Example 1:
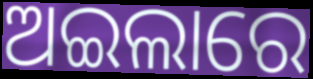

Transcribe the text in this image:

ଅଇଲାରେ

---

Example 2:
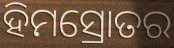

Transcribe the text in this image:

ହିମସ୍ରୋତର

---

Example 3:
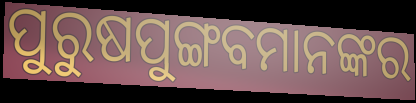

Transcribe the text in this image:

ପୁରୁଷପୁଙ୍ଗବମାନଙ୍କର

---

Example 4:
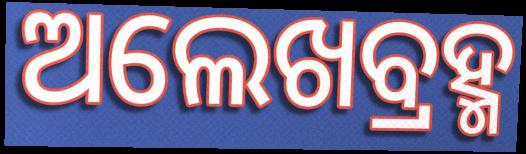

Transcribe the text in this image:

ଅଲେଖବ୍ରହ୍ମ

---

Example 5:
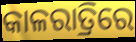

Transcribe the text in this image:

କାଳରାତ୍ରିରେ